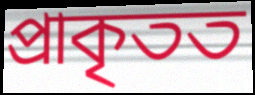
প্ৰাকৃতত